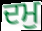
ਦਮੁ